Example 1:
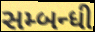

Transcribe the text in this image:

સમ્બન્ધી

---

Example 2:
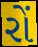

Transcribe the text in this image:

રોં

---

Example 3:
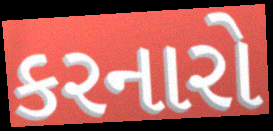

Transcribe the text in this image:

કરનારો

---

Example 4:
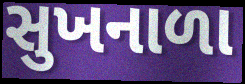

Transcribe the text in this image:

સુખનાળા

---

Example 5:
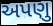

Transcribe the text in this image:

અપણુ